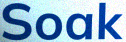
Soak